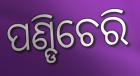
ପଣ୍ଡିଚେରି